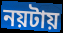
নয়টায়